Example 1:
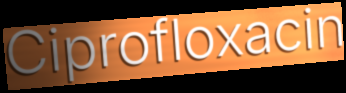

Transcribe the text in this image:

Ciprofloxacin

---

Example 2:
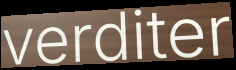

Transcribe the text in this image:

verditer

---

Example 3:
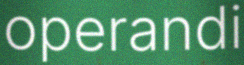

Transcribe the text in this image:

operandi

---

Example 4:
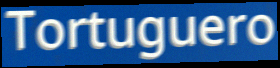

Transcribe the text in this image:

Tortuguero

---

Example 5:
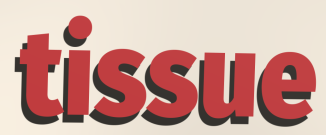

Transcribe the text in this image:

tissue